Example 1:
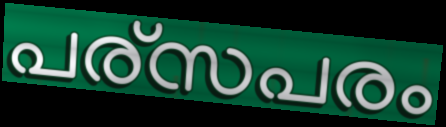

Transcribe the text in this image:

പര്സപരം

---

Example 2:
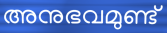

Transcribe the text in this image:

അനുഭവമുണ്ട്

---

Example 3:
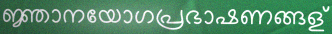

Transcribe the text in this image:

ജ്ഞാനയോഗപ്രഭാഷണങ്ങള്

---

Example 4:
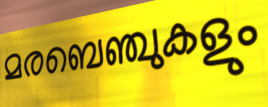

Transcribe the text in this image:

മരബെഞ്ചുകളും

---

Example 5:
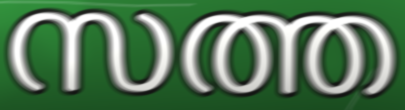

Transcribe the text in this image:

സത്ത